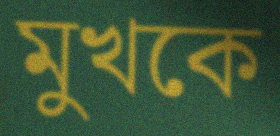
মুখকে